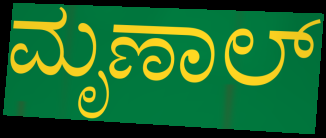
ಮೃಣಾಲ್